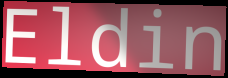
Eldin